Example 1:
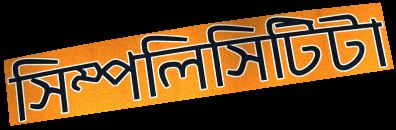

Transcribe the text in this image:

সিম্পলিসিটিটা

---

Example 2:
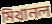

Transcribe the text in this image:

মিথানল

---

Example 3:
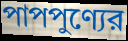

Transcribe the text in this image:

পাপপুণ্যের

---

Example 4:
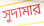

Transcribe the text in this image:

সুদামার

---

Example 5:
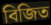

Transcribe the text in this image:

বিজিত